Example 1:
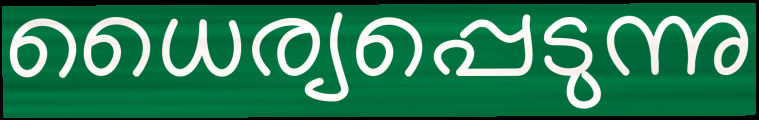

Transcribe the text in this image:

ധൈര്യപ്പെടുന്നു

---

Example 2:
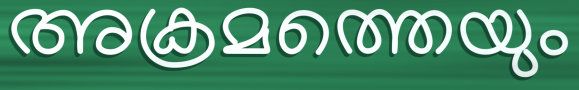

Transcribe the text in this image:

അക്രമത്തെയും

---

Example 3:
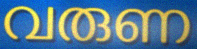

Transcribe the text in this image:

വരുണ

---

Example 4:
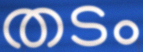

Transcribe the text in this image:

തടം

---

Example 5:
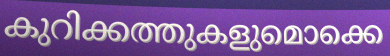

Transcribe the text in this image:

കുറിക്കത്തുകളുമൊക്കെ